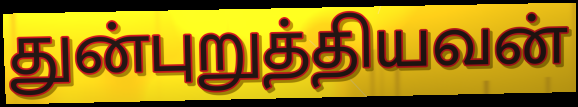
துன்புறுத்தியவன்